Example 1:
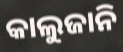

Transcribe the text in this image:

କାଲୁଜାନି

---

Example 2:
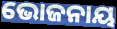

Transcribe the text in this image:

ଭୋଜନାୟ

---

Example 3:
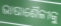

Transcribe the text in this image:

ଭାଷାଶୈଳୀକୁ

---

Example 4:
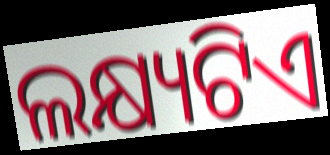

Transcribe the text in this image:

ଲକ୍ଷ୍ୟଟିଏ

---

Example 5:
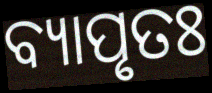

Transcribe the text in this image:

ବ୍ୟାପୃତଃ